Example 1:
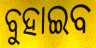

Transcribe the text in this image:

ବୁହାଇବ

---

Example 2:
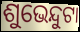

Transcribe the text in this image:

ଶୁଭେନ୍ଦୁଟା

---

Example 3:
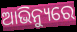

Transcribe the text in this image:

ଆଭିନ୍ୟୁରେ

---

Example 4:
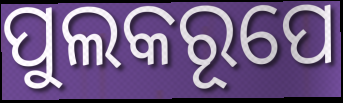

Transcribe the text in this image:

ପୁଲକରୂପେ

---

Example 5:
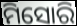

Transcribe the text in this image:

ମିସୋରି